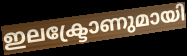
ഇലക്ട്രോണുമായി